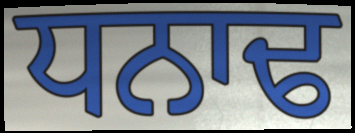
ਧਨਾਢ